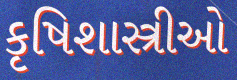
કૃષિશાસ્ત્રીઓ